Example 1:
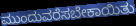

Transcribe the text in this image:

ಮುಂದುವರೆಸಬೇಕಾಯಿತು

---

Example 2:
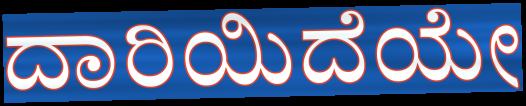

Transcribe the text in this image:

ದಾರಿಯಿದೆಯೇ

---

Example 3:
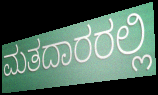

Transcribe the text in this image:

ಮತದಾರರಲ್ಲಿ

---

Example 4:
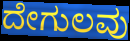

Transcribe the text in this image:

ದೇಗುಲವು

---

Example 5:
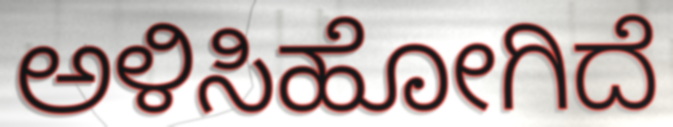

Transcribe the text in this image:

ಅಳಿಸಿಹೋಗಿದೆ